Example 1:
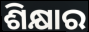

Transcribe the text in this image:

ଶିକ୍ଷାର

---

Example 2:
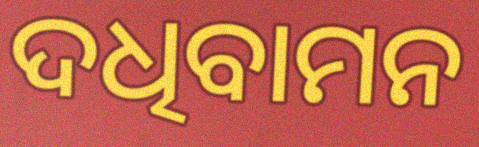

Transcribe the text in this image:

ଦଧିବାମନ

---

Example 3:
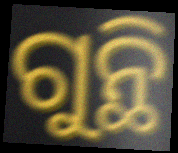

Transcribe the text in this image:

ଗୁନ୍ଥି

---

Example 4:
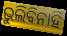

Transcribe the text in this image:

ଭୁଲିବିନାହିଁ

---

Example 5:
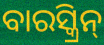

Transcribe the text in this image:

ବାରସ୍କ୍ରିନ୍